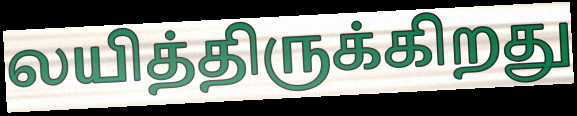
லயித்திருக்கிறது